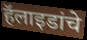
हॅलाइडांचे